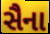
સૈના